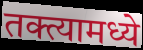
तक्त्यामध्ये